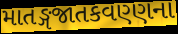
માતઙ્ગજાતકવણ્ણના